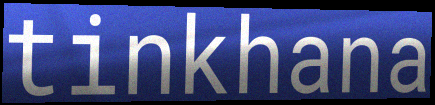
tinkhana